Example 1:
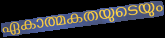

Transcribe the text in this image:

ഏകാത്മകതയുടെയും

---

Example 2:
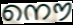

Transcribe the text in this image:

നൌ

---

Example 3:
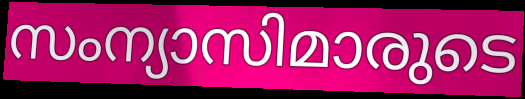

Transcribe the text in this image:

സംന്യാസിമാരുടെ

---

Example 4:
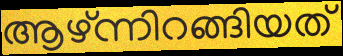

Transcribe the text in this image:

ആഴ്ന്നിറങ്ങിയത്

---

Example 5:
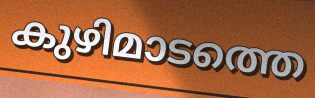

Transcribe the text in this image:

കുഴിമാടത്തെ